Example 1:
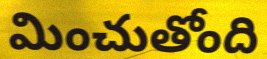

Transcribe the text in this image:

మించుతోంది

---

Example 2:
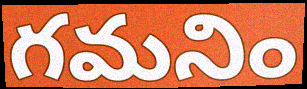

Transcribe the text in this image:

గమనిం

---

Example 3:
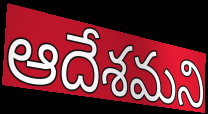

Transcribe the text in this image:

ఆదేశమని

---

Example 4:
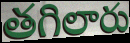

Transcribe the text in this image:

తగిలారు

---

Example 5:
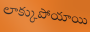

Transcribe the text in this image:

లాక్కుపోయాయి